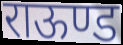
राऊण्ड